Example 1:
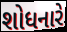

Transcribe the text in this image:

શોધનારે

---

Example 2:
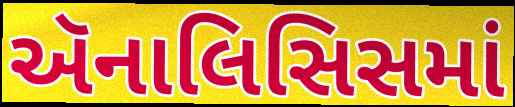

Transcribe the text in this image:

ઍનાલિસિસમાં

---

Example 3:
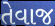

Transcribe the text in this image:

તેવાજ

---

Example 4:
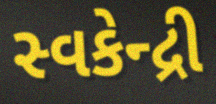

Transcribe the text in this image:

સ્વકેન્દ્રી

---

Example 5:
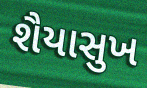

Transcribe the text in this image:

શૈયાસુખ